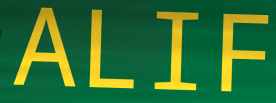
ALIF